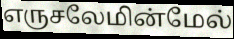
எருசலேமின்மேல்